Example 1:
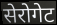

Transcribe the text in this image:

सेरोगेट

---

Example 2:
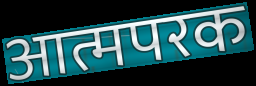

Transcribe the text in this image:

आत्मपरक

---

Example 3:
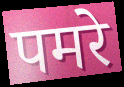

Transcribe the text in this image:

पमरे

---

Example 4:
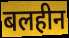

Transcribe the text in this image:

बलहीन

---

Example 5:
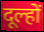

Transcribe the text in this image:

दूल्‍हों